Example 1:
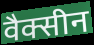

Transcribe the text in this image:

वैक्सीन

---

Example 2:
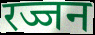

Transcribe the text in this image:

रज्जन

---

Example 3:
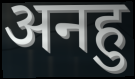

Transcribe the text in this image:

अनहु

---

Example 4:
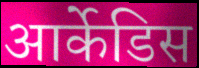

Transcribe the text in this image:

आर्केडिस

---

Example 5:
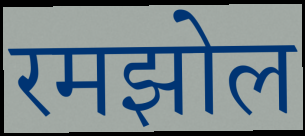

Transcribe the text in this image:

रमझोल